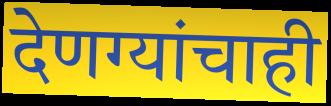
देणग्यांचाही